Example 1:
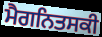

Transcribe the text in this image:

ਮੈਗਨਿਤਸਕੀ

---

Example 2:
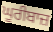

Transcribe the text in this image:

ਘੂਰੀਬਾਜ਼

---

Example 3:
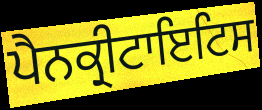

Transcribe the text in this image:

ਪੈਨਕ੍ਰੀਟਾਇਟਿਸ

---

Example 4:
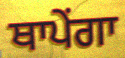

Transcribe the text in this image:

ਥਾਪੇਂਗਾ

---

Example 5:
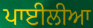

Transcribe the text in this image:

ਪਾਈਲੀਆ